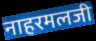
नाहरमलजी